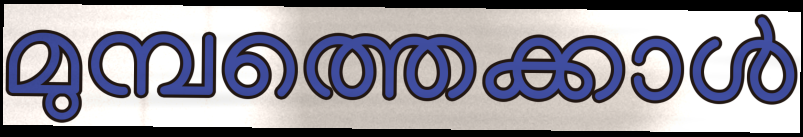
മുമ്പത്തെക്കാൾ